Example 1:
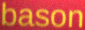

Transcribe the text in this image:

bason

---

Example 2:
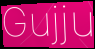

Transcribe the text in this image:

Gujju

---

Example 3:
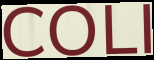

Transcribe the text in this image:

COLI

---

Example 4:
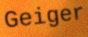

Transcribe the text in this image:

Geiger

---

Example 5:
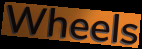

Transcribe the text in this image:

Wheels